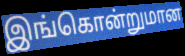
இங்கொன்றுமான